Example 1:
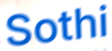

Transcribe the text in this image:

Sothi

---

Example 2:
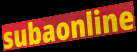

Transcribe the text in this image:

subaonline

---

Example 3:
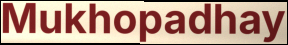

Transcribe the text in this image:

Mukhopadhay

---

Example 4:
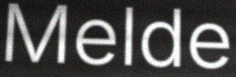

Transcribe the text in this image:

Melde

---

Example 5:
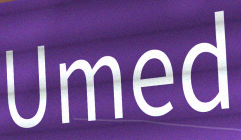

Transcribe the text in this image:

Umed